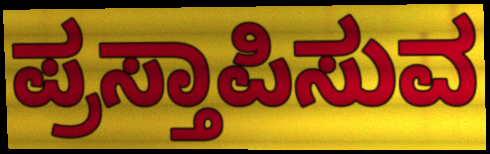
ಪ್ರಸ್ತಾಪಿಸುವ